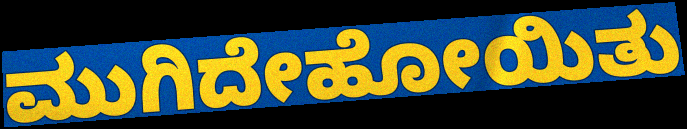
ಮುಗಿದೇಹೋಯಿತು